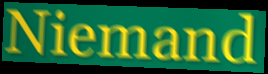
Niemand